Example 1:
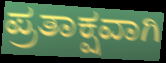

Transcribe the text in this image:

ಪ್ರತಾಕ್ಷವಾಗಿ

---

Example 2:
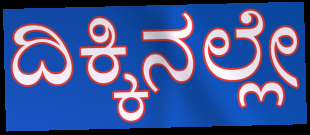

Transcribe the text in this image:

ದಿಕ್ಕಿನಲ್ಲೇ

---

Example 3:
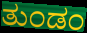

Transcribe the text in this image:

ತುಂಡಂ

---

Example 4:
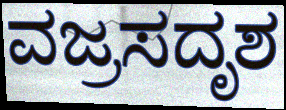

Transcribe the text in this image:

ವಜ್ರಸದೃಶ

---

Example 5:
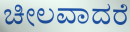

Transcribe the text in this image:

ಚೀಲವಾದರೆ